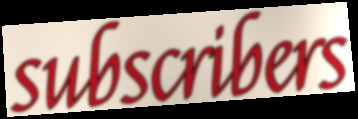
subscribers